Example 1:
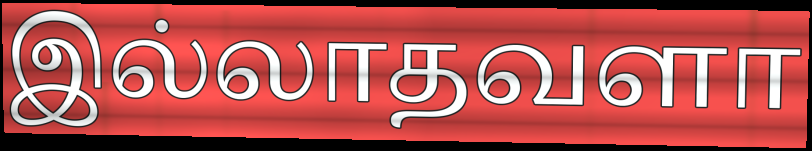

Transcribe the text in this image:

இல்லாதவளா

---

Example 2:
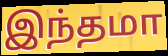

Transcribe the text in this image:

இந்தமா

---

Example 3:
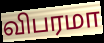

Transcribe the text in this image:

விபரமா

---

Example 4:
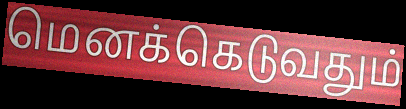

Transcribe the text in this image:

மெனக்கெடுவதும்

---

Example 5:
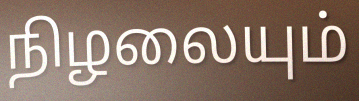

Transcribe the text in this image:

நிழலையும்